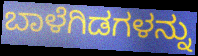
ಬಾಳೆಗಿಡಗಳನ್ನು